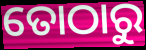
ତୋଠାରୁ